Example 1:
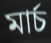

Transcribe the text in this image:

মার্চ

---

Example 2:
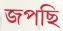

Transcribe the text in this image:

জপছি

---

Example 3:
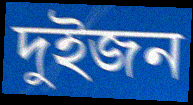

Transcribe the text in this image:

দুইজন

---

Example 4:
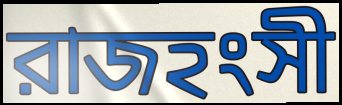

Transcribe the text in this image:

রাজহংসী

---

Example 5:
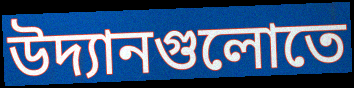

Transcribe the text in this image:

উদ্যানগুলোতে